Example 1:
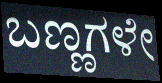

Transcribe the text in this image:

ಬಣ್ಣಗಳೇ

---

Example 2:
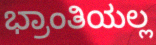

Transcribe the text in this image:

ಭ್ರಾಂತಿಯಲ್ಲ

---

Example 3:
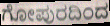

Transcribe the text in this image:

ಗೋಪುರದಿಂದ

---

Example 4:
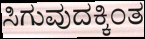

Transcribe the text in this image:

ಸಿಗುವುದಕ್ಕಿಂತ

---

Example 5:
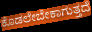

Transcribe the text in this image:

ಕೊಡಲೇಬೇಕಾಗುತ್ತದೆ